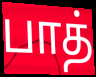
பாத்